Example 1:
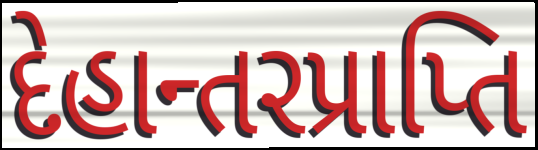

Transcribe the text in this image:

દેહાન્તરપ્રાપ્તિ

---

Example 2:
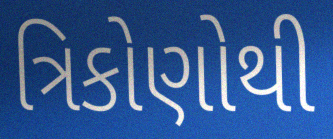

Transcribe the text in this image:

ત્રિકોણોથી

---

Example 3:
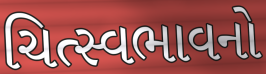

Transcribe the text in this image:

ચિત્સ્વભાવનો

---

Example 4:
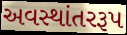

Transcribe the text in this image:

અવસ્થાંતરરૂપ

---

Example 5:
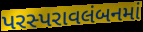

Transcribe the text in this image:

પરસ્પરાવલંબનમાં